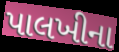
પાલખીના